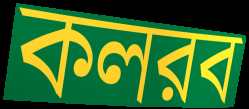
কলরব